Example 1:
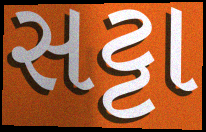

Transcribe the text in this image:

સટ્ટા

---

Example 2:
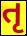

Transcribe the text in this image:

તૃ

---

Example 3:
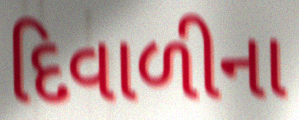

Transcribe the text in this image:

દિવાળીના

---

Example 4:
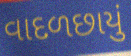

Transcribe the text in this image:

વાદળછાયું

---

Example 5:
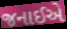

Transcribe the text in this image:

જનાઈએ